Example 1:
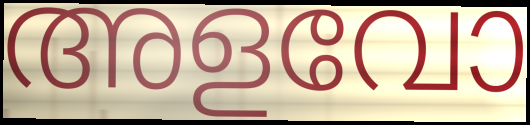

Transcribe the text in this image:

അളവോ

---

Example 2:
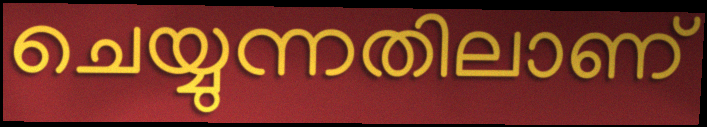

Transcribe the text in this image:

ചെയ്യുന്നതിലാണ്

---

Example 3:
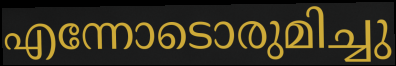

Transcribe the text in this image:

എന്നോടൊരുമിച്ചു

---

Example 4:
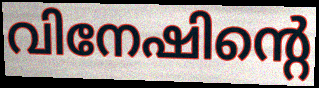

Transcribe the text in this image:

വിനേഷിന്റെ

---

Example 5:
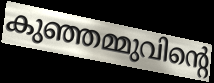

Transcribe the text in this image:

കുഞ്ഞമ്മുവിന്റെ